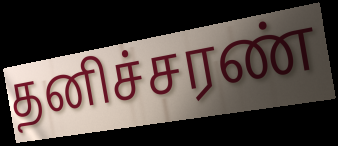
தனிச்சரண்